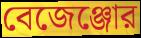
বেজেঞ্জোর